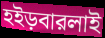
হইড়বারলাই